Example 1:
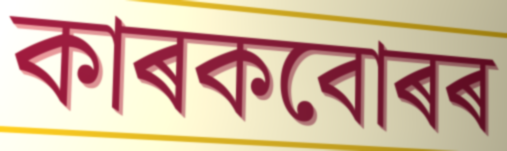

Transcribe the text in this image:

কাৰকবোৰৰ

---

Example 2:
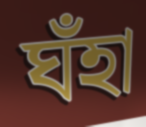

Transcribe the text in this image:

ঘঁহা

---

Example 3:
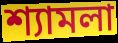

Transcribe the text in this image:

শ্যামলা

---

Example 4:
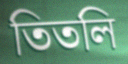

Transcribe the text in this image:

তিতলি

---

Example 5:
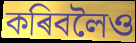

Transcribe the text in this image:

কৰিবলৈও